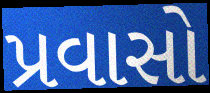
પ્રવાસો